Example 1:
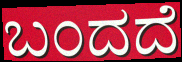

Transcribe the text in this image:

ಬಂದದೆ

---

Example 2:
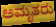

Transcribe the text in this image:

ಅಮೃತರು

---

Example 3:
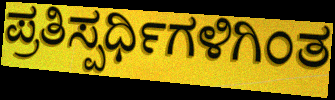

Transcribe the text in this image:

ಪ್ರತಿಸ್ಪರ್ಧಿಗಳಿಗಿಂತ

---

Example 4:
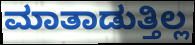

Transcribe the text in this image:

ಮಾತಾಡುತ್ತಿಲ್ಲ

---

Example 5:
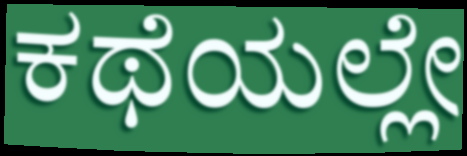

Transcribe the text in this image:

ಕಥೆಯಲ್ಲೇ